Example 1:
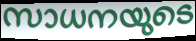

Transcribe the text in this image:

സാധനയുടെ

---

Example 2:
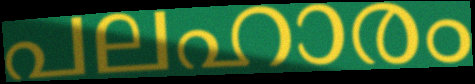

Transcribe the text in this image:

പലഹാരം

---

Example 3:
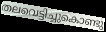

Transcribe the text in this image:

തലവെട്ടിച്ചുകൊണ്ടു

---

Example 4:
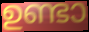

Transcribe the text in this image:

ഉണ്ടാ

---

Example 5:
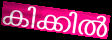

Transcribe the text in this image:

കിക്കിൽ